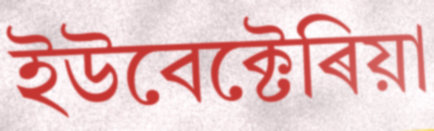
ইউবেক্টেৰিয়া